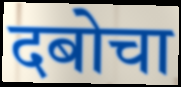
दबोचा